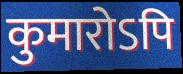
कुमारोऽपि